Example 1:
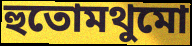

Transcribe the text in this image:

হুতোমথুমো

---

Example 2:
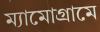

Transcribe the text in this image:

ম্যামোগ্রামে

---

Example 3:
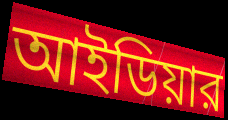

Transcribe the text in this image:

আইডিয়ার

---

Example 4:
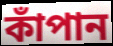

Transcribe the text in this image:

কাঁপান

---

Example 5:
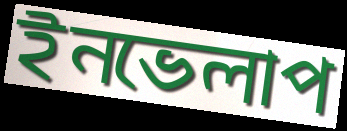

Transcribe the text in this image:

ইনভেলাপ